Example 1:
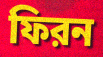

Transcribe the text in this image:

ফিরন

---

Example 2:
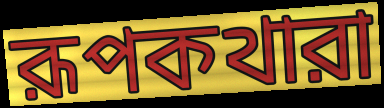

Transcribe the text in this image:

রূপকথারা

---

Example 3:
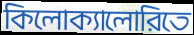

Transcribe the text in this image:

কিলোক্যালোরিতে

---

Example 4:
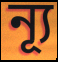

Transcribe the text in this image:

ন্যূ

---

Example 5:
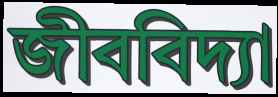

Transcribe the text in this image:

জীববিদ্যা